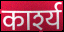
कार्श्य